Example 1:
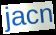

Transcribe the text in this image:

jacn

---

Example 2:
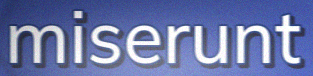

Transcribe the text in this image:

miserunt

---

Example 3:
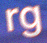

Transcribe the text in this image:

rg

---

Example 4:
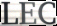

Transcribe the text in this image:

LEC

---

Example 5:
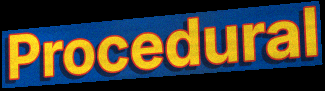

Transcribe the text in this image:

Procedural